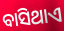
ବାସିଥାଏ